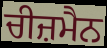
ਚੀਜ਼ਮੈਨ